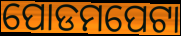
ପୋଡମପେଟା